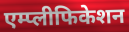
एम्प्लीफिकेशन